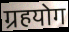
ग्रहयोग